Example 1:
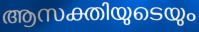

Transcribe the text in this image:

ആസക്തിയുടെയും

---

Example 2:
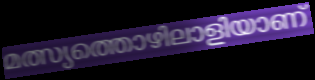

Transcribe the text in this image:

മത്സ്യത്തൊഴിലാളിയാണ്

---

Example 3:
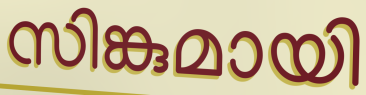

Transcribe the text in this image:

സിങ്കുമായി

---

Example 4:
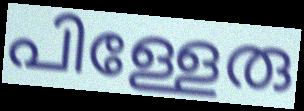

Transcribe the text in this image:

പിള്ളേരു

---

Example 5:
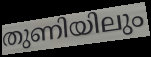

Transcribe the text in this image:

തുണിയിലും